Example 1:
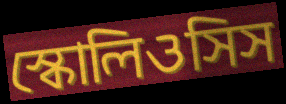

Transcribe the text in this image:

স্কোলিওসিস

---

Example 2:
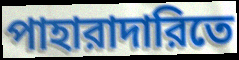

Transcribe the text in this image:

পাহারাদারিতে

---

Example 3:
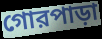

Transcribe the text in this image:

গোরপাড়া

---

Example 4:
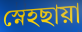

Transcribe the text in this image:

স্নেহছায়া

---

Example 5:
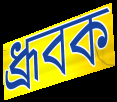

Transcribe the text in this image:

ধ্রূবক